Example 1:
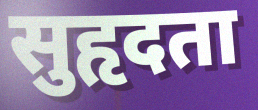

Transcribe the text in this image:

सुहृदता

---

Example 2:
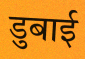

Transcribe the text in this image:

डुबाई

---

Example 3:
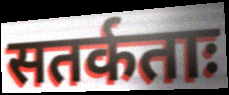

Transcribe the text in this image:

सतर्कताः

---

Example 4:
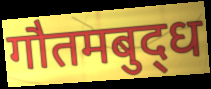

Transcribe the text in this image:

गौतमबुद्ध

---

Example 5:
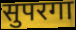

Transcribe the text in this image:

सुपरगा